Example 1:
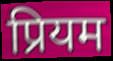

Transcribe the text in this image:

प्रियम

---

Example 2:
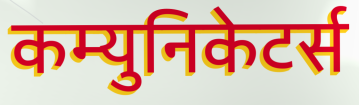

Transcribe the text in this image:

कम्युनिकेटर्स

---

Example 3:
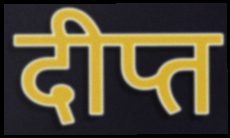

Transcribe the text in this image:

दीप्त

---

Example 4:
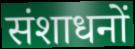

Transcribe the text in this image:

संशाधनों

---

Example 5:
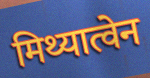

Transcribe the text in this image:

मिथ्यात्वेन